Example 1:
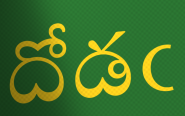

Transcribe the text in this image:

దోడఁ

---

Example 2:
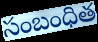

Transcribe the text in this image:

సంబంధిత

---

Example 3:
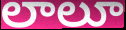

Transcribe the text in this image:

లాలూ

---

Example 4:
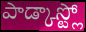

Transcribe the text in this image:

పాడ్కాస్ట్లో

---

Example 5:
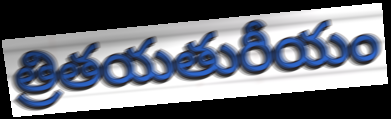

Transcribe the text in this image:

త్రితయతురీయం